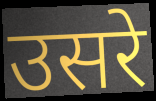
उसरे